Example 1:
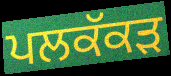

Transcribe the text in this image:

ਪਲਕੱਕੜ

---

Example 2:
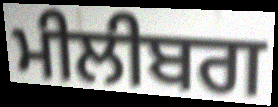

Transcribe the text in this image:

ਮੀਲੀਬਗ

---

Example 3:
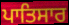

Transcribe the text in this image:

ਪਾਤਿਸਾਰ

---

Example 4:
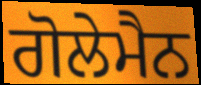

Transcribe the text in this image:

ਗੋਲੇਮੈਨ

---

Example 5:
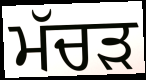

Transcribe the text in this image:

ਮੱਚੜ